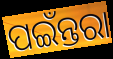
ପଇଁନ୍ତରା